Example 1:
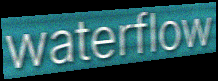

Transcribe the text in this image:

waterflow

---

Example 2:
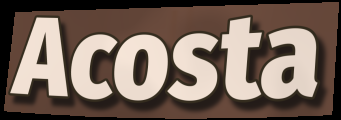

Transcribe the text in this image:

Acosta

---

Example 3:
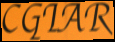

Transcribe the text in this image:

CGIAR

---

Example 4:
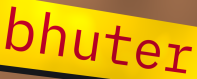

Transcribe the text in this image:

bhuter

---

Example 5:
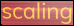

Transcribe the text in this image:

scaling